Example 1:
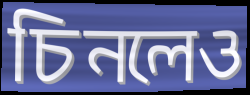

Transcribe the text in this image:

চিনলেও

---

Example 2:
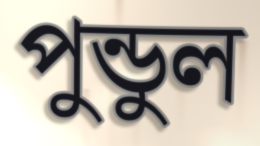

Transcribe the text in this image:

পুন্ডুল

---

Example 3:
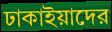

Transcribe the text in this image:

ঢাকাইয়াদের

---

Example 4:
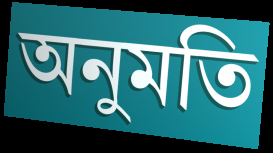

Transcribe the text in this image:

অনুমতি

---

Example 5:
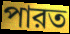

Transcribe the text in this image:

পারত